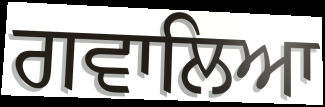
ਗਵਾਲਿਆ